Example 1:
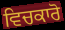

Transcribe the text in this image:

ਵਿਚਕਾਰੋ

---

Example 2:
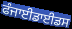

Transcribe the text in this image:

ਫੰਜਾਈਡਾਈਡਸ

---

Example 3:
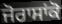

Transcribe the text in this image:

ਜੋਰਾਸਾਂਕੋ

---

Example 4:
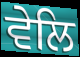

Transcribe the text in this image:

ਵੇਲਿ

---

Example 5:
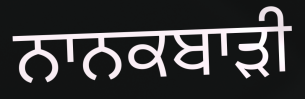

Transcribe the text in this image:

ਨਾਨਕਬਾੜੀ